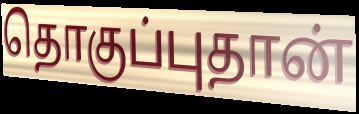
தொகுப்புதான்